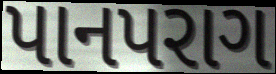
પાનપરાગ